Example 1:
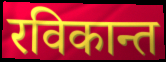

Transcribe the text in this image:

रविकान्त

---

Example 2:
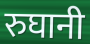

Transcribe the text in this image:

रुघानी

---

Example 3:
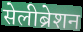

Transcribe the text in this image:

सेलीब्रेशन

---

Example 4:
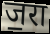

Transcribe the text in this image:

ज॒रा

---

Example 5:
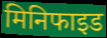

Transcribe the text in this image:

मिनिफाइड